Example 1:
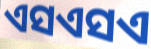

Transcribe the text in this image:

ଏସଏସଏ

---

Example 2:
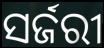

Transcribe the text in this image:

ସର୍ଜରୀ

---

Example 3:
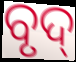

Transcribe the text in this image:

ବୃଦ୍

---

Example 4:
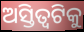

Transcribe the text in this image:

ଅସ୍ତିତ୍ୱଟିକୁ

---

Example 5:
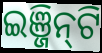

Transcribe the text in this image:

ଇଞ୍ଜିନ୍‌ଟି